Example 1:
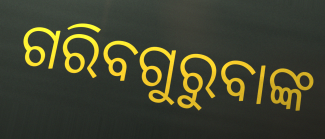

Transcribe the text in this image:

ଗରିବଗୁରୁବାଙ୍କ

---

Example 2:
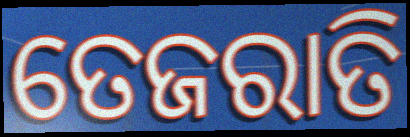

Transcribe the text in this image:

ତେଜରାତି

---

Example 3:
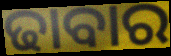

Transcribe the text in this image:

ଢାବାର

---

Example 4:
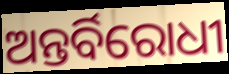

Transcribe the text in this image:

ଅନ୍ତର୍ବିରୋଧୀ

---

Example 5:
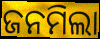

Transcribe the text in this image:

ଜନମିଲା